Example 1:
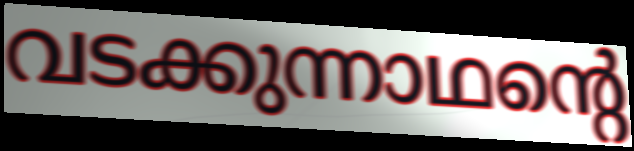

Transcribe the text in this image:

വടക്കുന്നാഥന്റെ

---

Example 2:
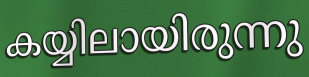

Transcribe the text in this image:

കയ്യിലായിരുന്നു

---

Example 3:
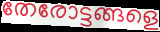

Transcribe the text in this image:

തേരോട്ടങ്ങളെ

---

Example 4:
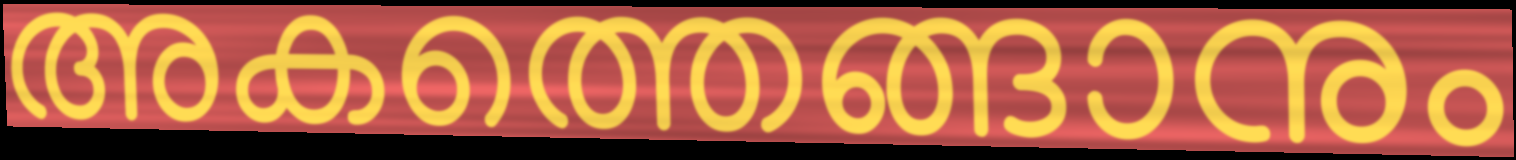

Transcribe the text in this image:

അകത്തെങ്ങാനും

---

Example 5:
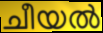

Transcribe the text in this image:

ചീയൽ